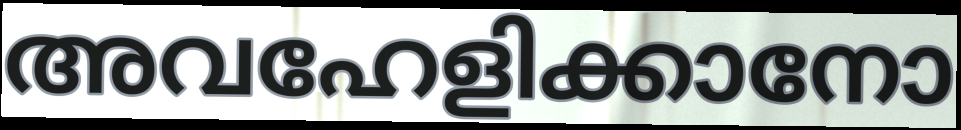
അവഹേളിക്കാനോ